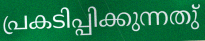
പ്രകടിപ്പിക്കുന്നതു്